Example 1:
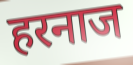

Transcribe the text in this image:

हरनाज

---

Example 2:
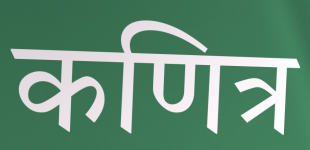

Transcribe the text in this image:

कणित्र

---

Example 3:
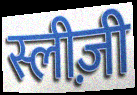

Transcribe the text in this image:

स्लीज़ी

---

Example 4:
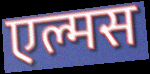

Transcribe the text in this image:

एल्मस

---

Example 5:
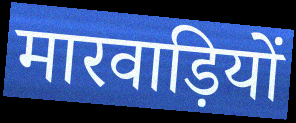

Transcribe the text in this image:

मारवाड़ियों